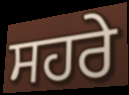
ਸਹਰੇ